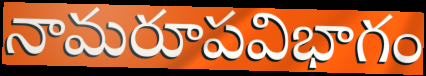
నామరూపవిభాగం